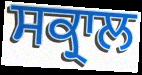
ਸਕ੍ਰਾਲ